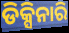
ଡିକ୍ସିନାରି